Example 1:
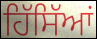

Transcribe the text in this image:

ਹਿੱਸਿੱਆਂ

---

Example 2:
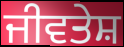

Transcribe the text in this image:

ਜੀਵਤੇਸ਼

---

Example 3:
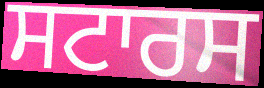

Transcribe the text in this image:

ਸਟਾਰਸ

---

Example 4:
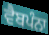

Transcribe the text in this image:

ਵੈਬਪੰਨਾ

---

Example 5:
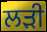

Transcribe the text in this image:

ਲਡ਼ੀ